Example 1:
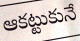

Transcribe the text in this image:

ఆకట్టుకునే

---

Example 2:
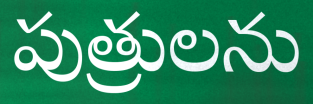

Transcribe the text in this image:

పుత్రులను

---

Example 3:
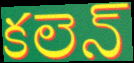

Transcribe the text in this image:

కలెన్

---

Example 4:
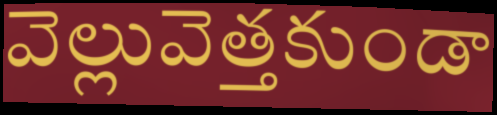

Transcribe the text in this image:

వెల్లువెత్తకుండా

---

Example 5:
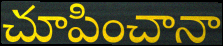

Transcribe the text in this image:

చూపించానా